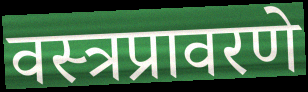
वस्त्रप्रावरणे